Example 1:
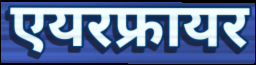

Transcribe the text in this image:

एयरफ्रायर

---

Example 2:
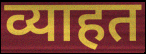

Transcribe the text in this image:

व्याहत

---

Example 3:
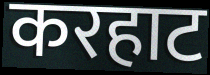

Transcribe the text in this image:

करहाट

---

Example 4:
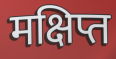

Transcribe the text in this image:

मक्षिप्त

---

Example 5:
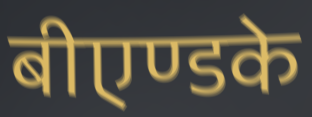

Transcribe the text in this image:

बीएण्डके